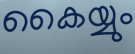
കൈയ്യും